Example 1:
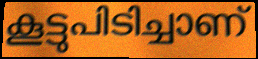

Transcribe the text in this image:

കൂട്ടുപിടിച്ചാണ്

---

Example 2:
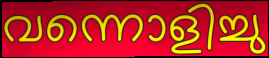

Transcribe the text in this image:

വന്നൊളിച്ചു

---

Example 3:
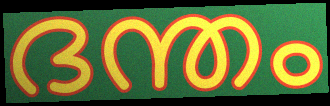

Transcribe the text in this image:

ദന്തം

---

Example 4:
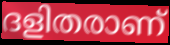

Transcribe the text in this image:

ദളിതരാണ്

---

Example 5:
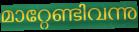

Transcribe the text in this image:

മാറ്റേണ്ടിവന്നു